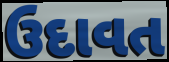
ઉદાવત